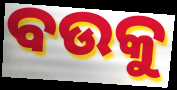
ବଉକୁ